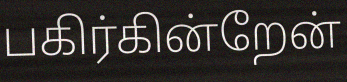
பகிர்கின்றேன்